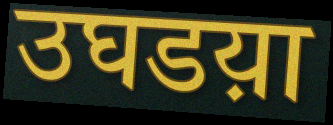
उघडय़ा